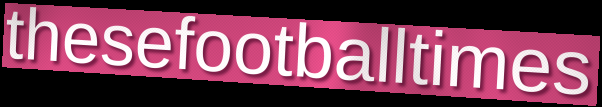
thesefootballtimes